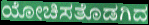
ಯೋಚಿಸತೊಡಗಿದ